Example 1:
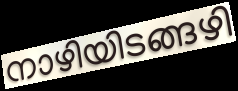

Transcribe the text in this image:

നാഴിയിടങ്ങഴി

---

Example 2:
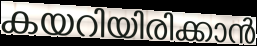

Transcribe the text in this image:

കയറിയിരിക്കാൻ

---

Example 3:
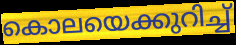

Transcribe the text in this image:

കൊലയെക്കുറിച്ച്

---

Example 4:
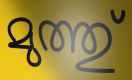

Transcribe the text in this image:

മുത്തു്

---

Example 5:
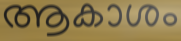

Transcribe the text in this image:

ആകാശം